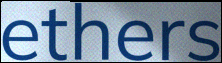
ethers